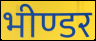
भीण्डर